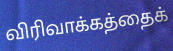
விரிவாக்கத்தைக்